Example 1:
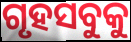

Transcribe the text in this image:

ଗୃହସବୁକୁ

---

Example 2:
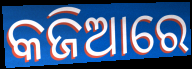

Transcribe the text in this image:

କଜିଆରେ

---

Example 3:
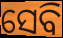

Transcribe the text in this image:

ସେବି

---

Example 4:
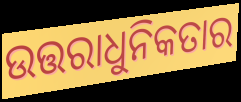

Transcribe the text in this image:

ଉତ୍ତରାଧୁନିକତାର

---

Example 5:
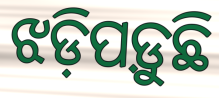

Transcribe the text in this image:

ଝଡ଼ିପଡ଼ୁଛି